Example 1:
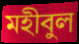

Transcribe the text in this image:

মহীবুল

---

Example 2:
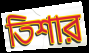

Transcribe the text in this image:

তিশার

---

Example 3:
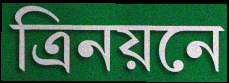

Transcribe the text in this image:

ত্রিনয়নে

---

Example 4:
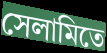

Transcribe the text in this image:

সেলামিতে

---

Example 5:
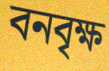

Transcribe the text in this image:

বনবৃক্ষ